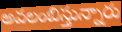
అవలంబిస్తున్నారు